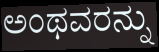
ಅಂಥವರನ್ನು